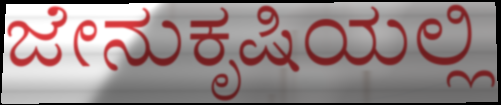
ಜೇನುಕೃಷಿಯಲ್ಲಿ